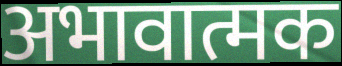
अभावात्मक